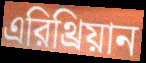
এরিথ্রিয়ান